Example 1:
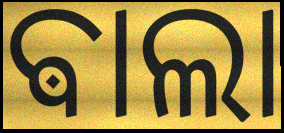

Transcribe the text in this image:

ଵାଲା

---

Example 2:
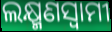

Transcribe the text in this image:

ଲକ୍ଷ୍ମଣସ୍ଵାମୀ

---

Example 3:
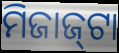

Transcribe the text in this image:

ମିଜାଜ୍‌ଟା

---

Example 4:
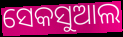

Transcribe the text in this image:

ସେକସୁଆଲ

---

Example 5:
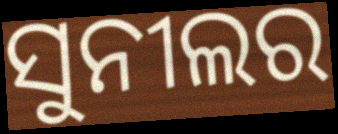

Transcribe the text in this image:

ସୁନୀଲର